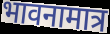
भावनामात्र